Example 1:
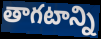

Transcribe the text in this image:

తాగటాన్ని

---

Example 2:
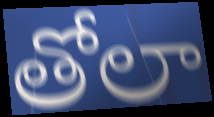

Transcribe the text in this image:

తోలా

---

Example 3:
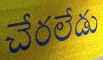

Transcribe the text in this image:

చేరలేడు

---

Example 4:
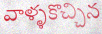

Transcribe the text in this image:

వాళ్ళకొచ్చిన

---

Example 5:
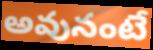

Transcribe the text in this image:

అవునంటే